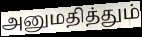
அனுமதித்தும்